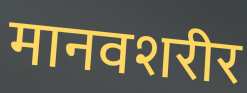
मानवशरीर